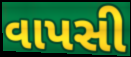
વાપસી